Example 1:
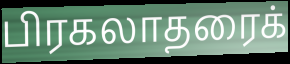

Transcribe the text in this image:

பிரகலாதரைக்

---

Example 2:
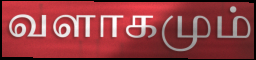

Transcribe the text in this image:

வளாகமும்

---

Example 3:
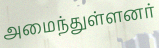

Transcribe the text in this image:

அமைந்துள்ளனர்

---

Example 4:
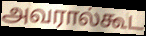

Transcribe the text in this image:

அவரால்கூட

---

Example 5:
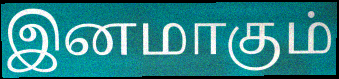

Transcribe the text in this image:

இனமாகும்